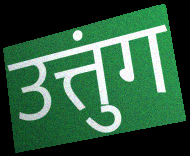
उत्तुंग